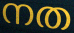
നത